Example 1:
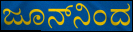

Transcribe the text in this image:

ಜೂನ್‌ನಿಂದ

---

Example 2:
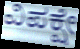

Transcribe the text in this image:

ವಿಪಕ್ಷೇ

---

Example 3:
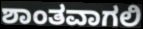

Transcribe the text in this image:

ಶಾಂತವಾಗಲಿ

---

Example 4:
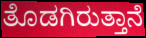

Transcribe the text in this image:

ತೊಡಗಿರುತ್ತಾನೆ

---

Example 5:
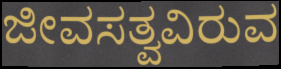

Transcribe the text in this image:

ಜೀವಸತ್ವವಿರುವ